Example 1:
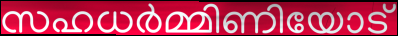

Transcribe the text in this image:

സഹധർമ്മിണിയോട്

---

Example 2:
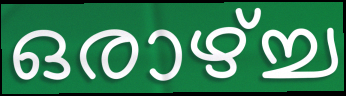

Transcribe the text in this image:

ഒരാഴ്ച്ച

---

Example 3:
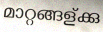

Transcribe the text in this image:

മാറ്റങ്ങള്ക്കു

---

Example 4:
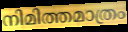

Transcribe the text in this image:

നിമിത്തമാത്രം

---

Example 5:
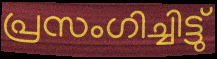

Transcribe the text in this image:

പ്രസംഗിച്ചിട്ടു്